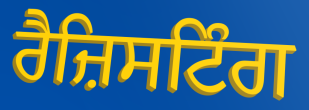
ਰੈਜ਼ਿਸਟਿੰਗ